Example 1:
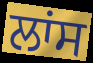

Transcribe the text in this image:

ਲਾਂਸ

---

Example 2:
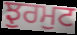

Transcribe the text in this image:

ਝੁਰਮੁਟ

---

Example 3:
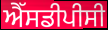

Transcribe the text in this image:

ਐੱਸਡੀਪੀਸੀ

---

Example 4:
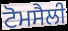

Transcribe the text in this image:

ਟੋਮਸੈਲੀ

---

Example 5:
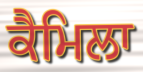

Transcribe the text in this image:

ਕੈਮਿਲਾ